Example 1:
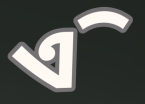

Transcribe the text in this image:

ଏି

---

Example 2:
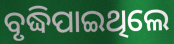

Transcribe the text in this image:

ବୃଦ୍ଧିପାଇଥିଲେ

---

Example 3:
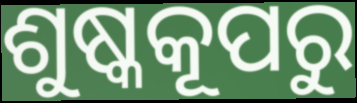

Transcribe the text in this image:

ଶୁଷ୍କକୂପରୁ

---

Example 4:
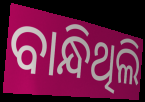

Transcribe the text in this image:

ବାନ୍ଧିଥିଲି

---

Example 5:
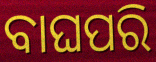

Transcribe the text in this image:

ବାଘପରି